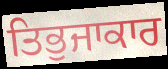
ਤਿਭੁਜਾਕਾਰ